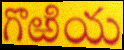
గొఱియ